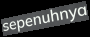
sepenuhnya